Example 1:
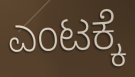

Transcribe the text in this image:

ಎಂಟಕ್ಕೆ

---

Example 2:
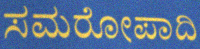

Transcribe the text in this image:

ಸಮರೋಪಾದಿ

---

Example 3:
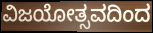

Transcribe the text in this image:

ವಿಜಯೋತ್ಸವದಿಂದ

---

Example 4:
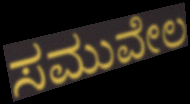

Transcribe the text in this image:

ಸಮುವೇಲ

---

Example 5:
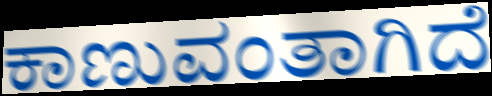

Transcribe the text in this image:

ಕಾಣುವಂತಾಗಿದೆ